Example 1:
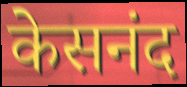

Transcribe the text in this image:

केसनंद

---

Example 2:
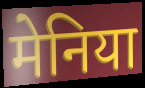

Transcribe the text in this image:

मेनिया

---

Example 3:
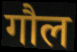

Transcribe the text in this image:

गौल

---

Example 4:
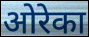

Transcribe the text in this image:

ओरेका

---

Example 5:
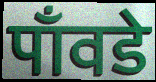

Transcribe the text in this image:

पाँवडे